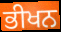
ਭੀਖਨ